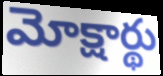
మోక్షార్థు